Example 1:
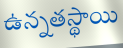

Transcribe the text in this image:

ఉన్నతస్థాయి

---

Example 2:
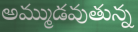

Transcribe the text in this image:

అమ్ముడవుతున్న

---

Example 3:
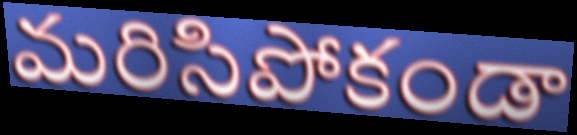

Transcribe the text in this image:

మరిసిపోకండా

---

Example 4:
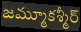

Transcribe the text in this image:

జమ్మూకశ్మీర్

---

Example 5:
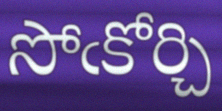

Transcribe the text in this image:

సోఁకోర్చి